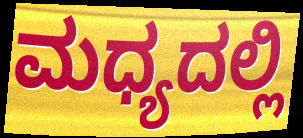
ಮಧ್ಯದಲ್ಲಿ